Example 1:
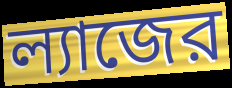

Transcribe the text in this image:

ল্যাজের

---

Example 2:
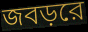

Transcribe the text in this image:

জবড়রে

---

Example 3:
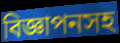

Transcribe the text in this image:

বিজ্ঞাপনসহ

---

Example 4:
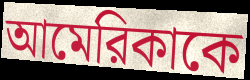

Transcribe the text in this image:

আমেরিকাকে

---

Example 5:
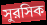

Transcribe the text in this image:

সুরসিক